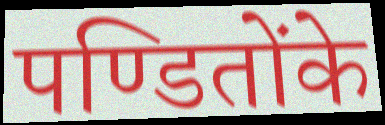
पण्डितोंके